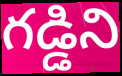
గడ్డిని